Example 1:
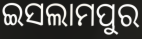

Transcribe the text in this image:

ଇସଲାମପୁର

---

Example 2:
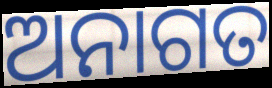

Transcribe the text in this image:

ଅନାଗତ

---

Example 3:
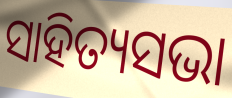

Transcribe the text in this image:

ସାହିତ୍ୟସଭା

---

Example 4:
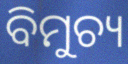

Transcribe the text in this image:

ବିମୁଚ୍ୟ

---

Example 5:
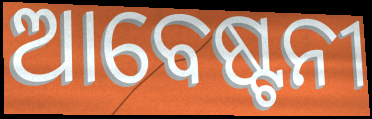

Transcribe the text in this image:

ଆବେଷ୍ଟନୀ